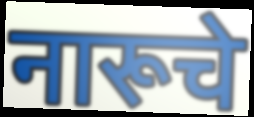
नारूचे